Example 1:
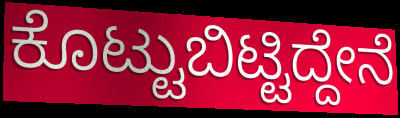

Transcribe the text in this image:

ಕೊಟ್ಟುಬಿಟ್ಟಿದ್ದೇನೆ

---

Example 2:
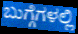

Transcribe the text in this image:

ಬುಗ್ಗೆಗಳಲ್ಲಿ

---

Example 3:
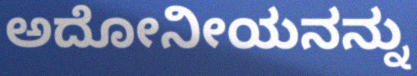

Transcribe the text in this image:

ಅದೋನೀಯನನ್ನು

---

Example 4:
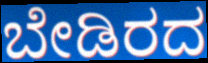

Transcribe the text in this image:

ಬೇಡಿರದ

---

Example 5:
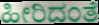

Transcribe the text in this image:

ಹೀರಿದಂತೆ